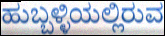
ಹುಬ್ಬಳ್ಳಿಯಲ್ಲಿರುವ